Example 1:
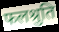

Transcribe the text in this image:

फलश्रुति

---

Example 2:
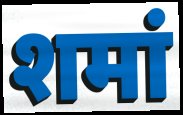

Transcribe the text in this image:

शमां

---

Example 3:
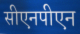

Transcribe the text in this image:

सीएनपीएन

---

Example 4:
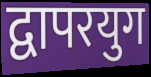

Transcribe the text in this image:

द्वापरयुग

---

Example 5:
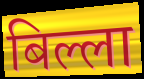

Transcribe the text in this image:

बिल्ला